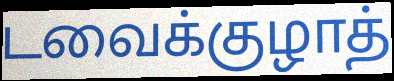
டவைக்குழாத்